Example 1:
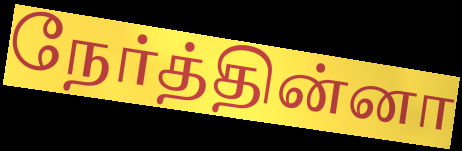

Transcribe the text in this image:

நேர்த்தின்னா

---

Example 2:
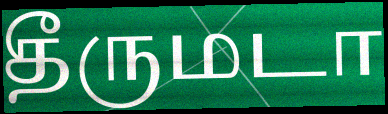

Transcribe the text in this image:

தீருமடா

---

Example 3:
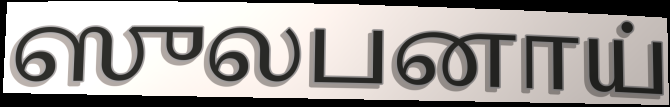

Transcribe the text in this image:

ஸுலபனாய்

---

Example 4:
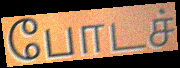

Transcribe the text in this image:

போடச்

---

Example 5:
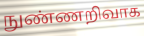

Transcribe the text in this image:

நுண்ணறிவாக